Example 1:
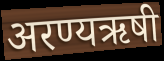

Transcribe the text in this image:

अरण्यऋषी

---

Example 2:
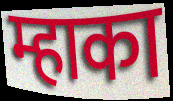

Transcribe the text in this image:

म्हाका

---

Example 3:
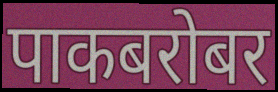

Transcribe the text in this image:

पाकबरोबर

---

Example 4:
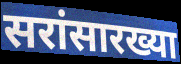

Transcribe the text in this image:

सरांसारख्या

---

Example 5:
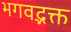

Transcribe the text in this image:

भगवद्भक्त